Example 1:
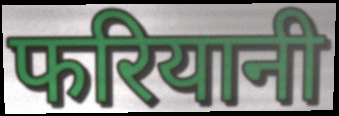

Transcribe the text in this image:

फरियानी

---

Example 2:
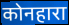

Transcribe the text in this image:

कोनहारा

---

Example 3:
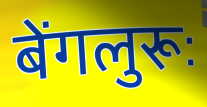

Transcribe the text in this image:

बेंगलुरूः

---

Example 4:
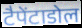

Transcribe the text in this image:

टैपेंटाडोल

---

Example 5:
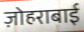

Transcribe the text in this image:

ज़ोहराबाई